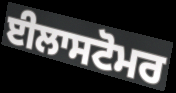
ਈਲਾਸਟੋਮਰ